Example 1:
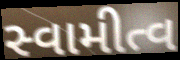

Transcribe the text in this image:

સ્વામીત્વ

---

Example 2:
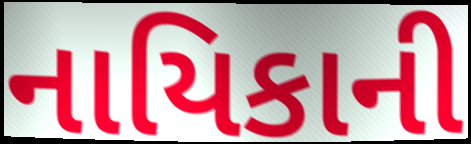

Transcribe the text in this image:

નાયિકાની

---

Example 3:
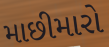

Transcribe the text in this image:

માછીમારો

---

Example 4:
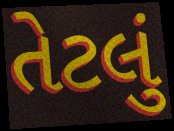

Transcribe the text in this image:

તેટલું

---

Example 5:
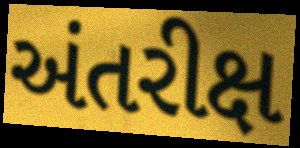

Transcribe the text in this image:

અંતરીક્ષ